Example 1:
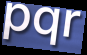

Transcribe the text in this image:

pqr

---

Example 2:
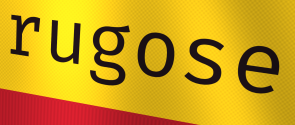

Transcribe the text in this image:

rugose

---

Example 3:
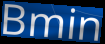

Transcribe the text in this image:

Bmin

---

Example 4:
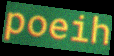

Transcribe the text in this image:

poeih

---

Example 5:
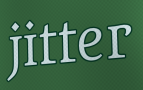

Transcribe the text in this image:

jitter